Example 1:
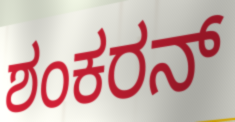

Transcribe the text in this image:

ಶಂಕರನ್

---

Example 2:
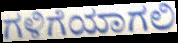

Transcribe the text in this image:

ಗಳಿಗೆಯಾಗಲಿ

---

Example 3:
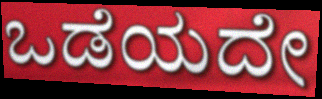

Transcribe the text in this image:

ಒಡೆಯದೇ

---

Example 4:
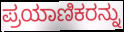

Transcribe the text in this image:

ಪ್ರಯಾಣಿಕರನ್ನು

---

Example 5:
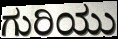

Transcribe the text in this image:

ಗುರಿಯು